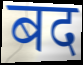
बद